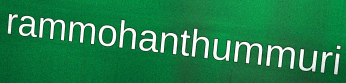
rammohanthummuri